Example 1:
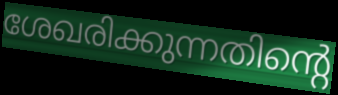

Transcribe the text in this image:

ശേഖരിക്കുന്നതിന്റെ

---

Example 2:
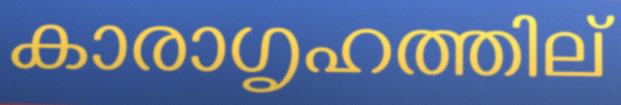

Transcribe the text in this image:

കാരാഗൃഹത്തില്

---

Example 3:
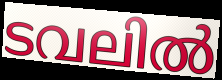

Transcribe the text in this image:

ടവലിൽ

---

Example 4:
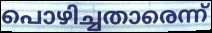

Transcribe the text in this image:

പൊഴിച്ചതാരെന്ന്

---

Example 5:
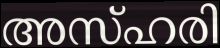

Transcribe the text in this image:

അസ്ഹരി